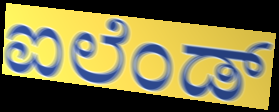
ಐಲೆಂಡ್